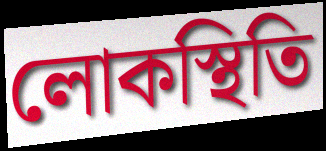
লোকস্থিতি